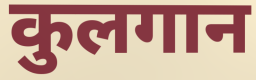
कुलगान